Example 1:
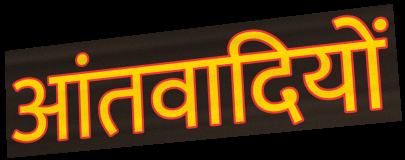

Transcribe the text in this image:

आंतवादियों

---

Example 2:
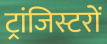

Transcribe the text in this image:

ट्रांजिस्टरों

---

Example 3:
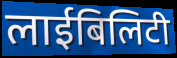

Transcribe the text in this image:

लाईबिलिटी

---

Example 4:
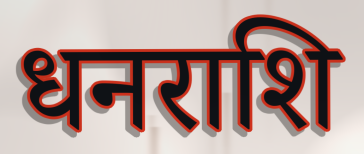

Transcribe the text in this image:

धनराशि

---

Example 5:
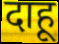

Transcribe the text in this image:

दाहू